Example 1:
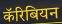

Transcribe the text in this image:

कॅरिबियन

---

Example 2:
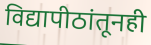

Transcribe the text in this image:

विद्यापीठांतूनही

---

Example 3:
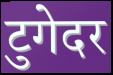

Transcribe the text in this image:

टुगेदर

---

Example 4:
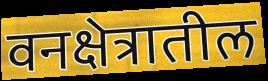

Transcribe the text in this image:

वनक्षेत्रातील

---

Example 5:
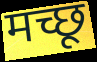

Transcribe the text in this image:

मच्छू